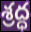
శ్రద్ధ